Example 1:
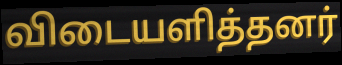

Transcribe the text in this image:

விடையளித்தனர்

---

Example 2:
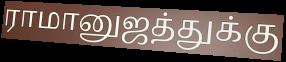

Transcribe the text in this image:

ராமானுஜத்துக்கு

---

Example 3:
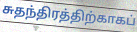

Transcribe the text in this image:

சுதந்திரத்திற்காகப்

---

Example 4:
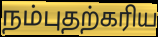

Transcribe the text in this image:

நம்புதற்கரிய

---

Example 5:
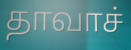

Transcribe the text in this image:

தாவாச்